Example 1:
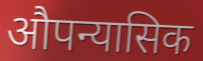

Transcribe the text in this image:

औपन्यासिक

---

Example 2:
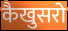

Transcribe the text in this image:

कैखुसरो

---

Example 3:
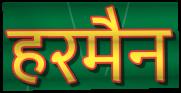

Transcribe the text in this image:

हरमैन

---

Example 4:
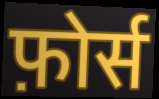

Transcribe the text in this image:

फ़ोर्स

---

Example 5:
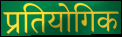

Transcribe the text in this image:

प्रतियोगिक